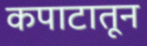
कपाटातून